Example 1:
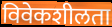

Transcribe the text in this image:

विवेकशीलता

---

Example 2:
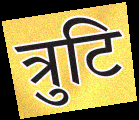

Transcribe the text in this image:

त्रुटि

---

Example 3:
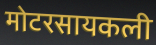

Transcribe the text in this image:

मोटरसायकली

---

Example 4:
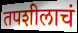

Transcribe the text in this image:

तपशीलाचं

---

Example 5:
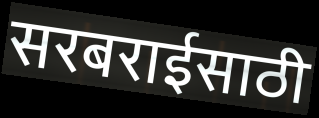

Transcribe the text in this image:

सरबराईसाठी